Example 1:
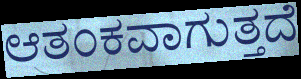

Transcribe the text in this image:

ಆತಂಕವಾಗುತ್ತದೆ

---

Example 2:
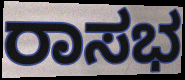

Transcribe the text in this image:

ರಾಸಭ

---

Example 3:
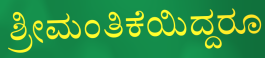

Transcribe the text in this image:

ಶ್ರೀಮಂತಿಕೆಯಿದ್ದರೂ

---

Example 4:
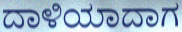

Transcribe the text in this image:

ದಾಳಿಯಾದಾಗ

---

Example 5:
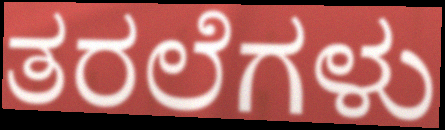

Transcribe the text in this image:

ತರಲೆಗಳು